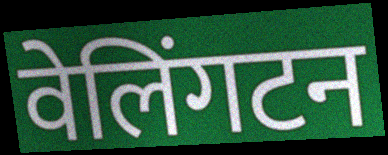
वेलिंगटन